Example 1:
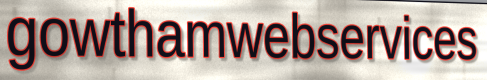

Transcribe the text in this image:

gowthamwebservices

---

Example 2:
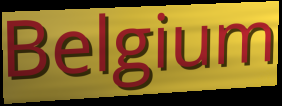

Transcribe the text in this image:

Belgium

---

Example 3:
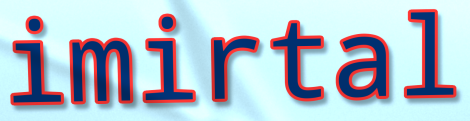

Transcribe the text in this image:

imirtal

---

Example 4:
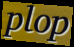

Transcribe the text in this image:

plop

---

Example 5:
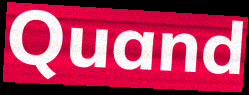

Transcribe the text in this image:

Quand